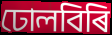
ঢোলবিৰি